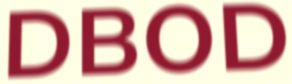
DBOD